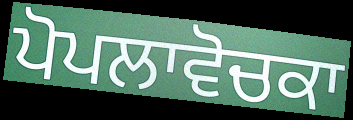
ਪੋਪਲਾਵੋਚਕਾ